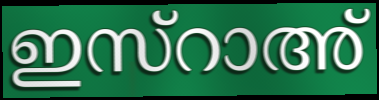
ഇസ്റാഅ്